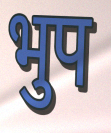
भुप